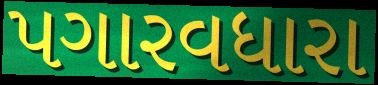
પગારવધારા